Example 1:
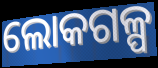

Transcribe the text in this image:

ଲୋକଗଳ୍ପ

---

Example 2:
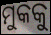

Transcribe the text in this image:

ମୁକକୁ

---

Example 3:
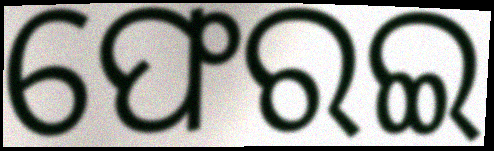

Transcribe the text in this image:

ଫେରଇ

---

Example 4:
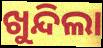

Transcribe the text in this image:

ଖୁନ୍ଦିଲା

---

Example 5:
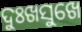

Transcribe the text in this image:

ଦୁଃଖସୁଖେ